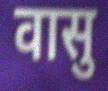
वासु